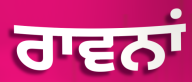
ਰਾਵਨਾਂ